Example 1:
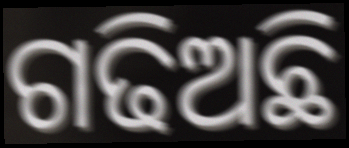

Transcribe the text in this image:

ଗଢିଅଛି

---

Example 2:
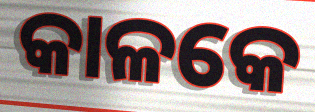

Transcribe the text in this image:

କାଳକେ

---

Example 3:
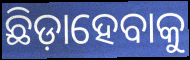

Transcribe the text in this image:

ଛିଡ଼ାହେବାକୁ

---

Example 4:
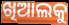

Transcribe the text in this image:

ଖିଆଲକୁ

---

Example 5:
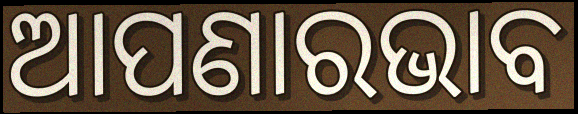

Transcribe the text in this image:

ଆପଣାରଭାବ